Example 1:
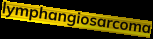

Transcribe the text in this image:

lymphangiosarcoma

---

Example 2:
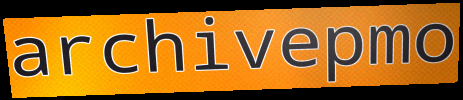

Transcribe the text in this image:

archivepmo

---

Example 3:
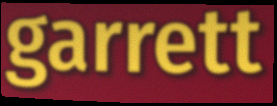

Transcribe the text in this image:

garrett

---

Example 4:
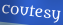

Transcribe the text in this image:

coutesy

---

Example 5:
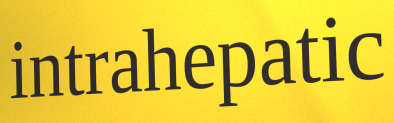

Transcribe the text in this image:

intrahepatic